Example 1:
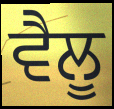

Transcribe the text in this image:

ਵੈਲੂ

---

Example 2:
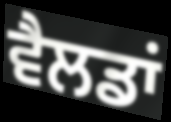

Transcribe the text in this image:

ਵੈਲਡਾਂ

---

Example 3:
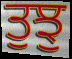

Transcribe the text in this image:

ਤੁਝੁ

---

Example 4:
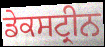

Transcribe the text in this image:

ਡੇਕਸਟ੍ਰੀਨ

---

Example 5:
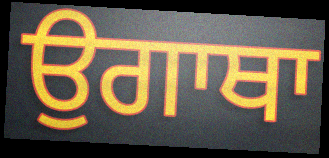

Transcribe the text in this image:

ਉਗਾਥਾ